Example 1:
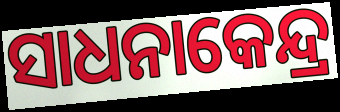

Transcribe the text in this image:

ସାଧନାକେନ୍ଦ୍ର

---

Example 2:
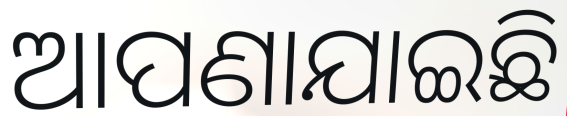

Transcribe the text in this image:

ଆପଣାଯାଇଛି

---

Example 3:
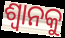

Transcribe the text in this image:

ଶ୍ଵାନକୁ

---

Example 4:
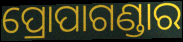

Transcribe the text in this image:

ପ୍ରୋପାଗଣ୍ଡାର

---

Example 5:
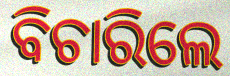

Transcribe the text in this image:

ବିଚାରିଲେ